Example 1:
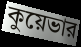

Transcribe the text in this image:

কুয়েভার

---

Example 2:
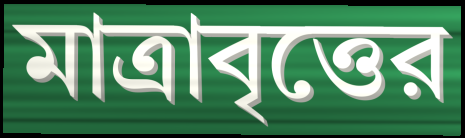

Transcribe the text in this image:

মাত্রাবৃত্তের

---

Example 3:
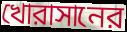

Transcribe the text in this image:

খোরাসানের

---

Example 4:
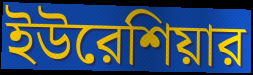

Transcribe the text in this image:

ইউরেশিয়ার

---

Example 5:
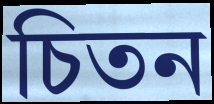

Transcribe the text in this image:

চিতন